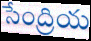
సేంద్రియ